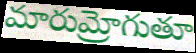
మారుమ్రోగుతూ